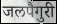
जलपैगुरी